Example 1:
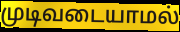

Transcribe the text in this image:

முடிவடையாமல்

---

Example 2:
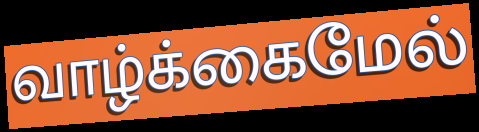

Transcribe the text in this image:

வாழ்க்கைமேல்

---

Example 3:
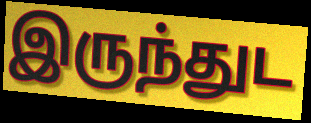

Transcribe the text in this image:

இருந்துட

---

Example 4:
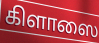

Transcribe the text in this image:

கிளாஸை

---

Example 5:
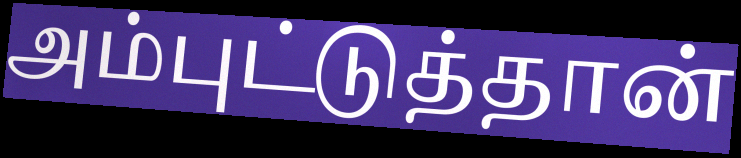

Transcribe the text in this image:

அம்புட்டுத்தான்